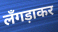
लँगड़ाकर